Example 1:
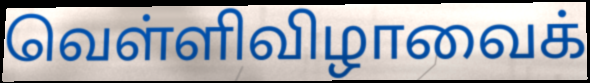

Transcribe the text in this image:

வெள்ளிவிழாவைக்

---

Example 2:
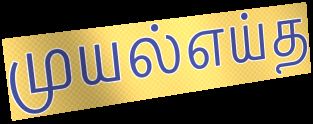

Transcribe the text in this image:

முயல்எய்த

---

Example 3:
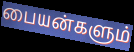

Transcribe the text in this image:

பையன்களும்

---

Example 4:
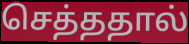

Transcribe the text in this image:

செத்ததால்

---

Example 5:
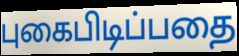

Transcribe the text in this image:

புகைபிடிப்பதை